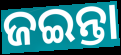
ଜଇନ୍ତା